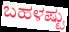
ಬಹಳಷ್ಟು